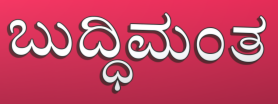
ಬುದ್ಧಿಮಂತ